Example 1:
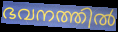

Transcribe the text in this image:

ഭവനത്തിൽ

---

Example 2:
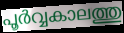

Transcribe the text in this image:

പൂർവ്വകാലത്തു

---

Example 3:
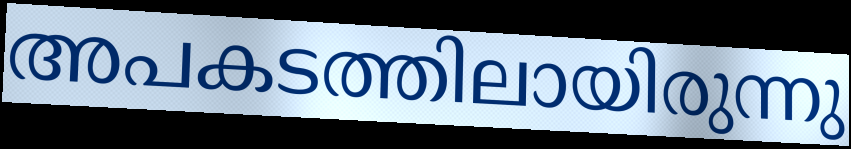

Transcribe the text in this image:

അപകടത്തിലായിരുന്നു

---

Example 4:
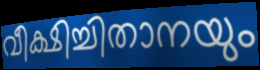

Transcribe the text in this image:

വീക്ഷിച്ചിതാനയും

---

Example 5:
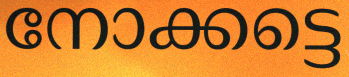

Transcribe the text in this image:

നോക്കട്ടെ